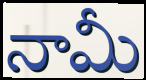
నామీ